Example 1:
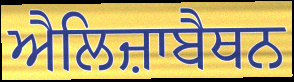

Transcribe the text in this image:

ਐਲਿਜ਼ਾਬੈਥਨ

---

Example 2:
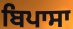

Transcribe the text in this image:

ਬਿਪਾਸਾ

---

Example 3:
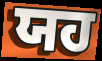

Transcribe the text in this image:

ਯਹ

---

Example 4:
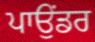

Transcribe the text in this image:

ਪਾਉਂਡਰ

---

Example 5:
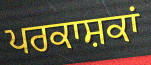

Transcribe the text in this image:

ਪਰਕਾਸ਼ਕਾਂ